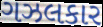
ગઝલકાર